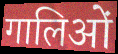
गालिओं